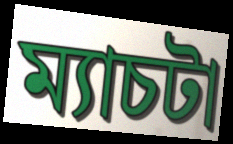
ম্যাচটা